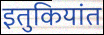
इतुकियांत